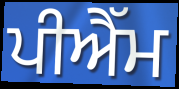
ਪੀਐੱਮ